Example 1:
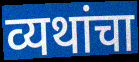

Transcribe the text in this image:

व्यथांचा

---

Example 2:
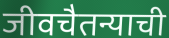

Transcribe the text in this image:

जीवचैतन्याची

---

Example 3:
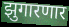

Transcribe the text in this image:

झुगारणार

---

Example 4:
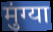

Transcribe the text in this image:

मुंग्या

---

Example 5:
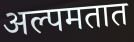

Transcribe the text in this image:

अल्पमतात